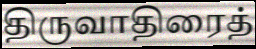
திருவாதிரைத்